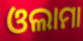
ଓଲାମା